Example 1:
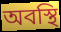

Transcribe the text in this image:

অবস্থি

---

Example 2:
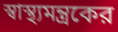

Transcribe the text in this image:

স্বাস্থ্যমন্ত্রকের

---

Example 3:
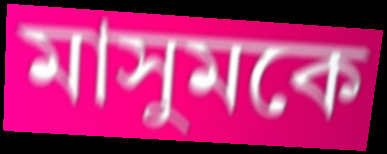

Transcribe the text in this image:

মাসুমকে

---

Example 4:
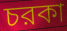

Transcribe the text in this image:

চরকা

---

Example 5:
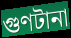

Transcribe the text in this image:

গুণটানা